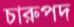
চারুপদ